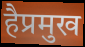
हैप्रमुख